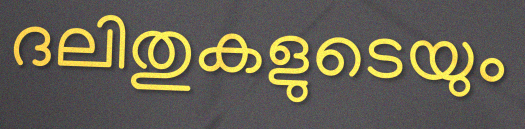
ദലിതുകളുടെയും